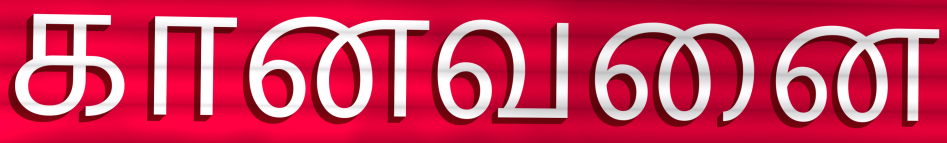
கானவனை